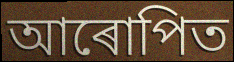
আৰোপিত